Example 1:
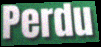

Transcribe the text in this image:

Perdu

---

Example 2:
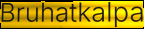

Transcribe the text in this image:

Bruhatkalpa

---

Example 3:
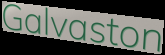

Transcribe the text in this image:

Galvaston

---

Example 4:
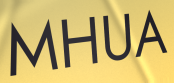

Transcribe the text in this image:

MHUA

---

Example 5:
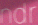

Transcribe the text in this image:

ndr